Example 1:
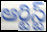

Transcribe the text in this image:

ఆర్టిస్ట్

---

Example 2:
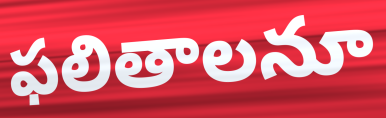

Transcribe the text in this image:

ఫలితాలనూ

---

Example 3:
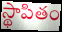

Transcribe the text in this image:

స్థాపితం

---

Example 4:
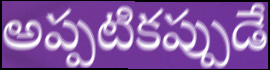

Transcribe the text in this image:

అప్పటికప్పుడే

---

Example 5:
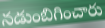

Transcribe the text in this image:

నడుంబిగించారు